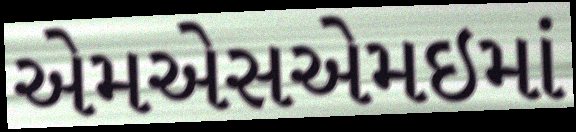
એમએસએમઇમાં